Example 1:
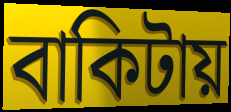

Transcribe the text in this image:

বাকিটায়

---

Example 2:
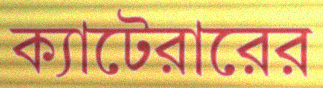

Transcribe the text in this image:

ক্যাটেরারের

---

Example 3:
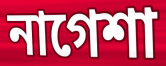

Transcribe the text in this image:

নাগেশা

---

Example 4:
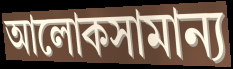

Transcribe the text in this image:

আলোকসামান্য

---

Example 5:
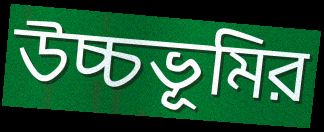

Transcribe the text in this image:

উচ্চভূমির